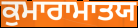
ਕੁਮਾਰਾਮਾਤਯ